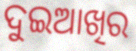
ଦୁଇଆଖିର